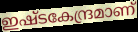
ഇഷ്ടകേന്ദ്രമാണ്